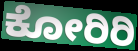
ಕೋರಿರಿ